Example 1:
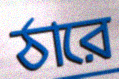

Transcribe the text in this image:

ঠারে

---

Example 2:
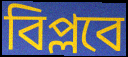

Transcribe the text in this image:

বিপ্লবে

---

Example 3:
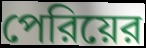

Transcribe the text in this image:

পেরিয়ের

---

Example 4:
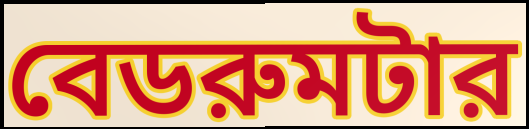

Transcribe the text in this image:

বেডরুমটার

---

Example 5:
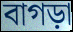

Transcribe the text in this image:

বাগড়া